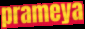
prameya